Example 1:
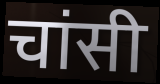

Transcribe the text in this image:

चांसी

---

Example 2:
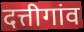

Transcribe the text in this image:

दत्तीगांव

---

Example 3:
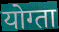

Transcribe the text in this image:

योग्ता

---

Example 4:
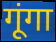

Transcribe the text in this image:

गूंगा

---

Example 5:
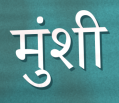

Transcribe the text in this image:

मुंशी